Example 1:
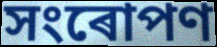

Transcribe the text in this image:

সংৰোপণ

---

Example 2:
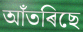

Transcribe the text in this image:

আঁতৰিছে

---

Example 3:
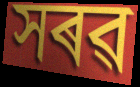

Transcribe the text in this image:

সৰৱ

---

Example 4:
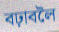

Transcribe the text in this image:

বঢ়াবলৈ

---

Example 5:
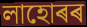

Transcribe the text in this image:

লাহোৰৰ